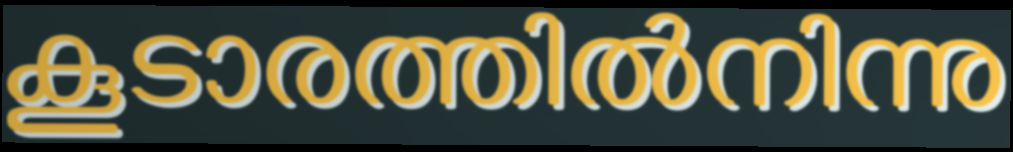
കൂടാരത്തിൽനിന്നു